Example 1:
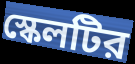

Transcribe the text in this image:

স্কেলটির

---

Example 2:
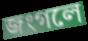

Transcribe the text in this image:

জংগলে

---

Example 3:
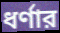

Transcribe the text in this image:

ধর্ণার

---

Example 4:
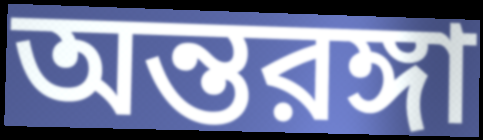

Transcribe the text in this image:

অন্তরঙ্গা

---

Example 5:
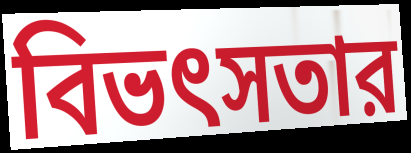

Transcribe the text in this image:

বিভৎসতার